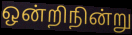
ஒன்றிநின்று